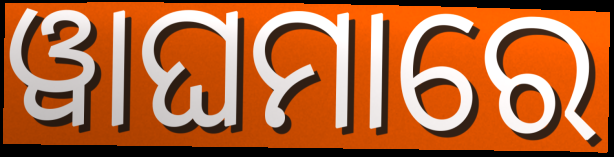
ୱାଘମାରେ